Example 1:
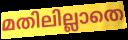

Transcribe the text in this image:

മതിലില്ലാതെ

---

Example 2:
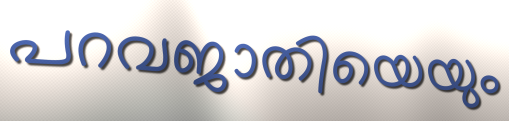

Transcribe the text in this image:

പറവജാതിയെയും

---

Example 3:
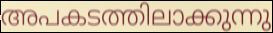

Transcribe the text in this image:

അപകടത്തിലാക്കുന്നു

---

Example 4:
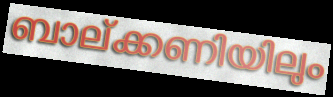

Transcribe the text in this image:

ബാല്ക്കണിയിലും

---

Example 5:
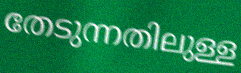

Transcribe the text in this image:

തേടുന്നതിലുള്ള